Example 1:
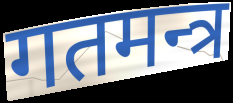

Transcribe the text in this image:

गतमन्त्र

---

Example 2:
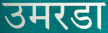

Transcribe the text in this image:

उमरडा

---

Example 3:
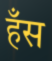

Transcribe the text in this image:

हँस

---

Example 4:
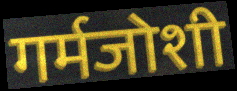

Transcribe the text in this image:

गर्मजोशी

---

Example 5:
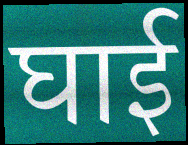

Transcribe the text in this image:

घाई